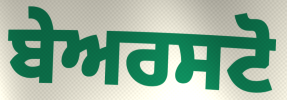
ਬੇਅਰਸਟੋ